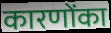
कारणोंका